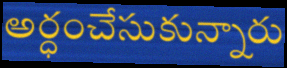
అర్ధంచేసుకున్నారు